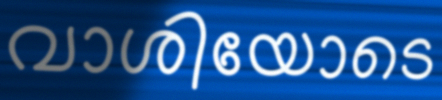
വാശിയോടെ